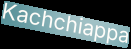
Kachchiappa